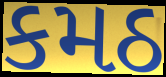
કમઠ